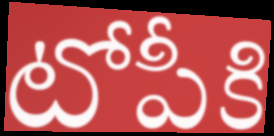
టోపీకి